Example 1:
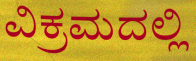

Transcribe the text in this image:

ವಿಕ್ರಮದಲ್ಲಿ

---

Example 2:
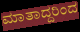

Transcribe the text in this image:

ಮಾತಾದ್ದರಿಂದ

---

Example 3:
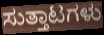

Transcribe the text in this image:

ಸುತ್ತಾಟಗಳು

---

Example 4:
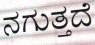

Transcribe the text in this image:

ನಗುತ್ತದೆ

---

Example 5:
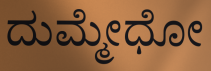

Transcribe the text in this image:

ದುಮ್ಮೇಧೋ